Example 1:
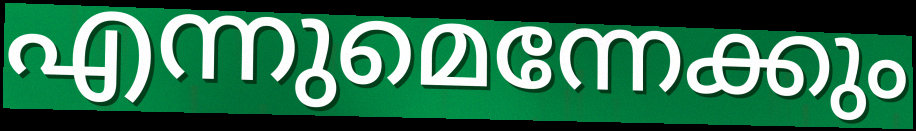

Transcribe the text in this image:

എന്നുമെന്നേക്കും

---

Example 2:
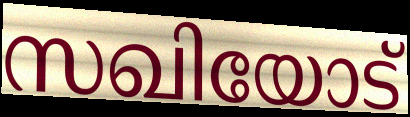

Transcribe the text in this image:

സഖിയോട്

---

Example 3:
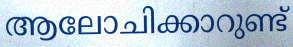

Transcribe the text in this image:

ആലോചിക്കാറുണ്ട്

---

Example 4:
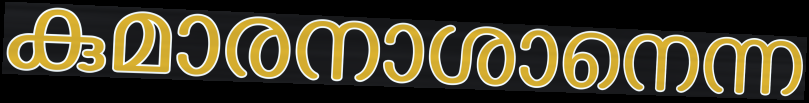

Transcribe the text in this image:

കുമാരനാശാനെന്ന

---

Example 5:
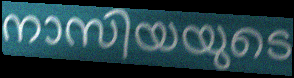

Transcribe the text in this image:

നാസിയയുടെ